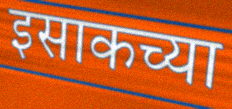
इसाकच्या